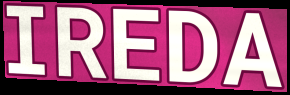
IREDA